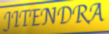
JITENDRA